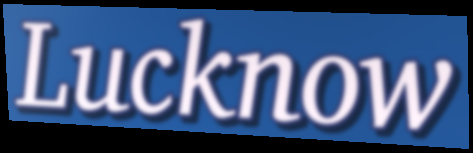
Lucknow